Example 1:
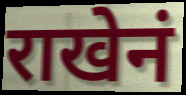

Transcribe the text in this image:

राखेनं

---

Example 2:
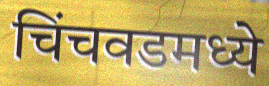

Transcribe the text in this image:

चिंचवडमध्ये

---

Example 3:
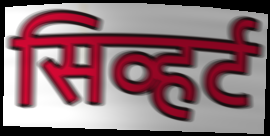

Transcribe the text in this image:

सिव्हर्ट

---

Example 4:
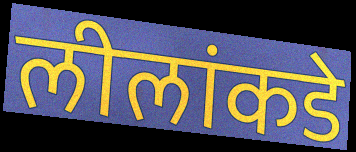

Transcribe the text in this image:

लीलांकडे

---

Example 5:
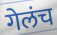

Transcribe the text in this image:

गेलंच